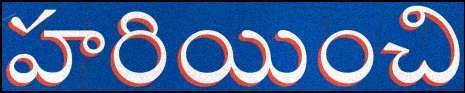
హరియించి